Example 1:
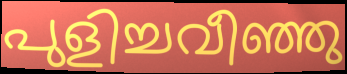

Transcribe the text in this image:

പുളിച്ചവീഞ്ഞു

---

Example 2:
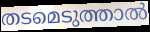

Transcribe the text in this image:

തടമെടുത്താൽ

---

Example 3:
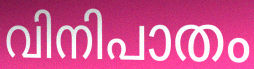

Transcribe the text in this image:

വിനിപാതം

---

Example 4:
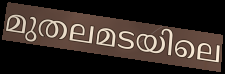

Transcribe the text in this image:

മുതലമടയിലെ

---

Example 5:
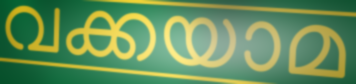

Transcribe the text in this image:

വക്കയാമ